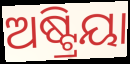
ଅଷ୍ଟ୍ରିୟା